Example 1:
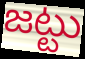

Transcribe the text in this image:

జట్టు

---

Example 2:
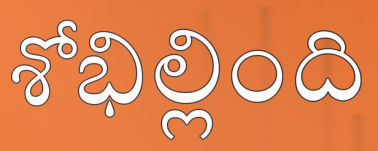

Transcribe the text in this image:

శోభిల్లింది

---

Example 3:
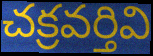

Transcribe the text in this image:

చక్రవర్తివి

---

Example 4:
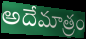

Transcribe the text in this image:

అదేమాత్రం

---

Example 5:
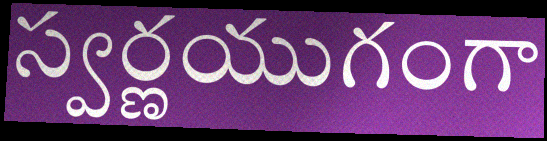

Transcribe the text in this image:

స్వర్ణయుగంగా